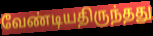
வேண்டியதிருந்தது